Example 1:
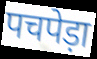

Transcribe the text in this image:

पचपेड़ा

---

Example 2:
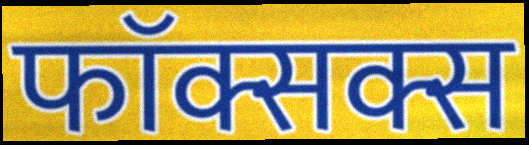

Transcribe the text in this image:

फॉक्सक्स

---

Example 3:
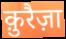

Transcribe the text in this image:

क़ुरैज़ा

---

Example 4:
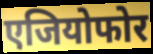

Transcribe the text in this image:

एजियोफोर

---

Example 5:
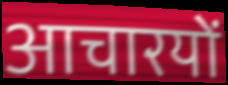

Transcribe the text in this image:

आचारयों